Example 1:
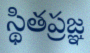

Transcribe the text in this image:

స్థితప్రజ్ఞ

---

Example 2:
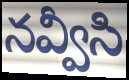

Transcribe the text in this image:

నవ్వీసి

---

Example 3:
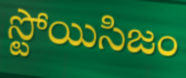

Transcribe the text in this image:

స్టోయిసిజం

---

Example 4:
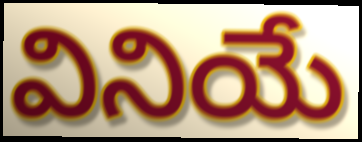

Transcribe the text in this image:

వినియే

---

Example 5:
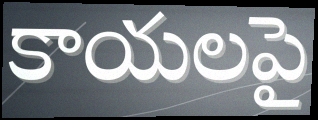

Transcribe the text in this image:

కాయలపై